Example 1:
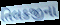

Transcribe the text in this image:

તિલકજીના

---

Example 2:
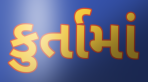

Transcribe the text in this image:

કુર્તામાં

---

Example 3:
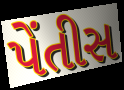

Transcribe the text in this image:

પેંતીસ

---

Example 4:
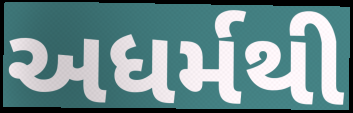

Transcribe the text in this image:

અધર્મથી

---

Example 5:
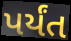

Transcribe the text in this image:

પર્યંત